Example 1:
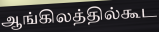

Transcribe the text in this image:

ஆங்கிலத்தில்கூட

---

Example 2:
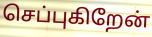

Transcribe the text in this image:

செப்புகிறேன்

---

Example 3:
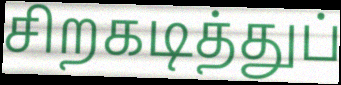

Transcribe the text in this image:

சிறகடித்துப்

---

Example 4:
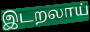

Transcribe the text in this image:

இடறலாய்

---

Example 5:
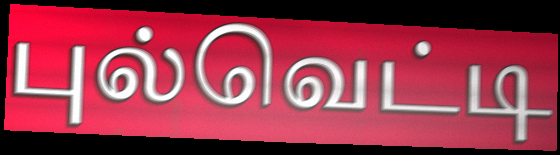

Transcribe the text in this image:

புல்வெட்டி